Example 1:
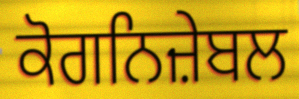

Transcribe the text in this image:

ਕੋਗਨਿਜ਼ੇਬਲ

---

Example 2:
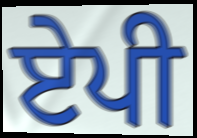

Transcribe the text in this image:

ਏਪੀ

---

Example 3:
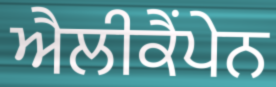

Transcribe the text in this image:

ਐਲੀਕੈਂਪੇਨ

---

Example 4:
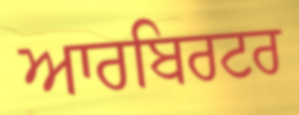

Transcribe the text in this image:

ਆਰਬਿਰਟਰ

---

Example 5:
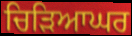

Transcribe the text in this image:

ਚਿੜਿਆਘਰ